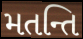
મતન્તિ